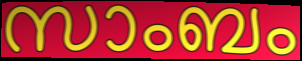
സാംബം